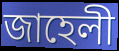
জাহেলী